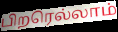
பிறரெல்லாம்